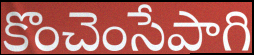
కొంచెంసేపాగి